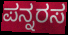
ಪನ್ನರಸ